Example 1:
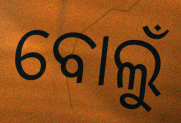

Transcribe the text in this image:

ବୋଲୁଁ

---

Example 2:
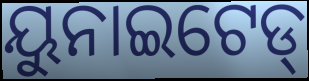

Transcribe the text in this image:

ୟୁନାଇଟେଡ୍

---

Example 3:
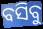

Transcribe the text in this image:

ବସିବୁ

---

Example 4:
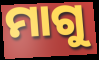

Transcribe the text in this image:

ମାଗୁ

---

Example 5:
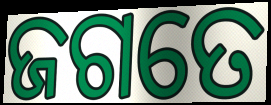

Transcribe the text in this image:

ଜଗତେ